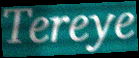
Tereye